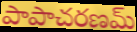
పాపాచరణమ్